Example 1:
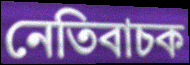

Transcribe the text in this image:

নেতিবাচক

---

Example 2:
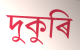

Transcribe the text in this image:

দুকুৰি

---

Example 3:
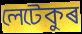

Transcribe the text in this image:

লেটেকুৰ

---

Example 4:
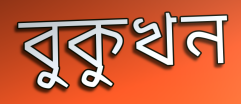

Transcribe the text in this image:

বুকুখন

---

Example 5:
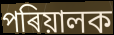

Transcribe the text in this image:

পৰিয়ালক